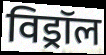
विड्रॉल